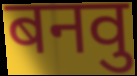
बनवु